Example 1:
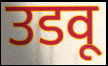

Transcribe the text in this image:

उडवू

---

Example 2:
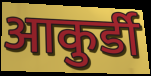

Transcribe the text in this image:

आकुर्डी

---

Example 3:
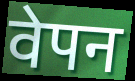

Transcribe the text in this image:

वेपन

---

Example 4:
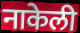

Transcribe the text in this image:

नाकेली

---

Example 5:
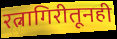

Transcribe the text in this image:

रत्नागिरीतूनही